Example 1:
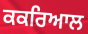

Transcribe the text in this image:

ਕਕਰਿਆਲ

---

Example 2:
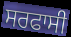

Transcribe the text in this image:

ਸਰਫਾਸੀ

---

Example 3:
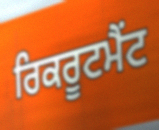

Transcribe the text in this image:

ਰਿਕਰੂਟਮੈਂਟ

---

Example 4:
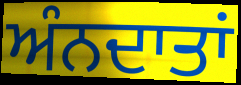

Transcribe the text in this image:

ਅੰਨਦਾਤਾਂ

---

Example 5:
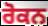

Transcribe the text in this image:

ਰੋਕਨ